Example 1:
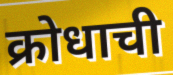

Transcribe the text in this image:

क्रोधाची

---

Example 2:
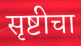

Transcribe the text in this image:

सृष्टीचा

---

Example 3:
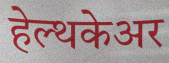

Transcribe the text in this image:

हेल्थकेअर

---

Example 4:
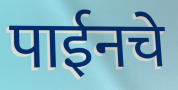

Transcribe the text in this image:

पाईनचे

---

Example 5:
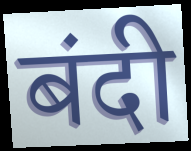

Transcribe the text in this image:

बंदी